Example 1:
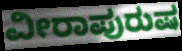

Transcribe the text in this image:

ವೀರಾಪುರುಷ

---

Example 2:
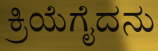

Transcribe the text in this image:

ಕ್ರಿಯೆಗೈದನು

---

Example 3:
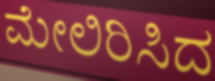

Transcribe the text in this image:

ಮೇಲಿರಿಸಿದ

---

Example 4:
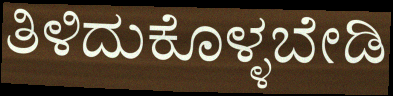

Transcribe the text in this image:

ತಿಳಿದುಕೊಳ್ಳಬೇಡಿ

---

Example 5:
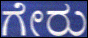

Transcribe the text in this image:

ಗೇರು